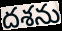
దశను